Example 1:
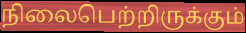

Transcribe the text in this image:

நிலைபெற்றிருக்கும்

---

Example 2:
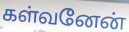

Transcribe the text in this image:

கள்வனேன்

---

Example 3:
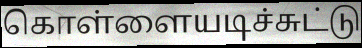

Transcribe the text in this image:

கொள்ளையடிச்சுட்டு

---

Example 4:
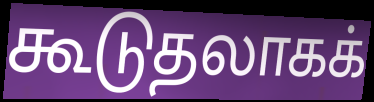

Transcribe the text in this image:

கூடுதலாகக்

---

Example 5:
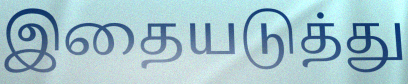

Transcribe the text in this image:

இதையடுத்து